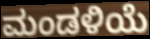
ಮಂಡಳಿಯೆ